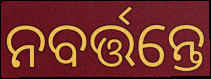
ନବର୍ତ୍ତନ୍ତେ